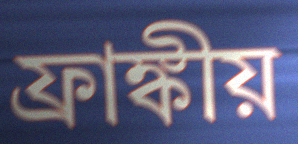
ফ্রাঙ্কীয়